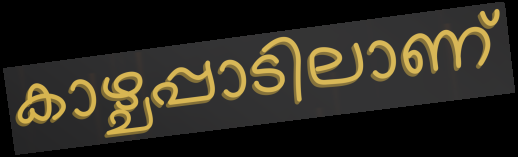
കാഴ്ചപ്പാടിലാണ്